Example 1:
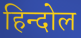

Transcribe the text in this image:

हिन्दोल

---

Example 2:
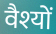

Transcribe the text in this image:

वैश्‍यों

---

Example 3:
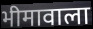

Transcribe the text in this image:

भीमावाला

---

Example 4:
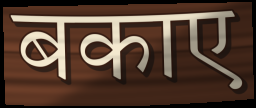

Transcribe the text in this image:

बकाए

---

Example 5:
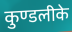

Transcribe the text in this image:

कुण्डलीके